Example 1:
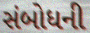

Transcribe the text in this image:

સંબોધની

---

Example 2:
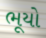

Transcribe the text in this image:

ભૂયો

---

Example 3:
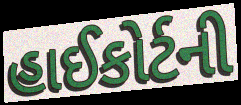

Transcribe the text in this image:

હાઈકોર્ટની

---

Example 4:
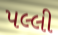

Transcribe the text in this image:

પલ્લી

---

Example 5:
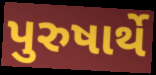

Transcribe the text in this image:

પુરુષાર્થે